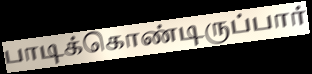
பாடிக்கொண்டிருப்பார்